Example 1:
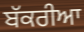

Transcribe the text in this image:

ਬੱਕਰੀਆ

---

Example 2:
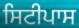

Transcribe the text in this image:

ਸਿਟੀਪਾਸ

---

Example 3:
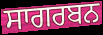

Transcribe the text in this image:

ਸਾਗਰਬਨ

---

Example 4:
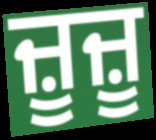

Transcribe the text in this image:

ਜ਼ੂਜ਼ੂ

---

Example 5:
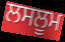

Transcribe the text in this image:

ਲਸਲੂਮ